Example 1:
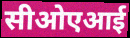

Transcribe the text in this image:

सीओएआई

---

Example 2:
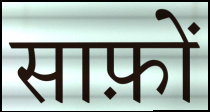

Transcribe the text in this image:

साफ़ों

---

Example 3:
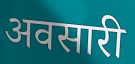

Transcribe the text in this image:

अवसारी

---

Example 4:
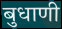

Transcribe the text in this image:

बुधाणी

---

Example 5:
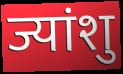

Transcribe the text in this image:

ज्यांशु